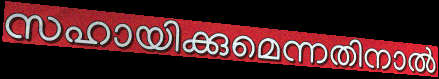
സഹായിക്കുമെന്നതിനാൽ